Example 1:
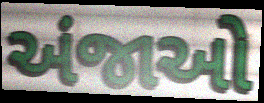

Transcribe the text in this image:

અંજાઓ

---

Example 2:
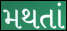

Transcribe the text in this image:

મથતાં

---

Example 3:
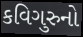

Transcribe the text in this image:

કવિગુરુનો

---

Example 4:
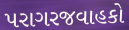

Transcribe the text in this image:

પરાગરજવાહકો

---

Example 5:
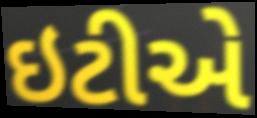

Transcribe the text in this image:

ઇટીએ